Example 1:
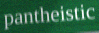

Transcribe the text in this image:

pantheistic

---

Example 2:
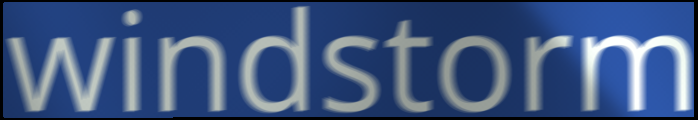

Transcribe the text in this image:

windstorm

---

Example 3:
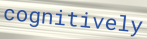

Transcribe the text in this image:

cognitively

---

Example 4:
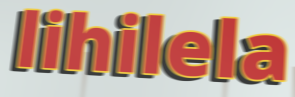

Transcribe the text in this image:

lihilela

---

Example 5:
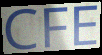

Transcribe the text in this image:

CFE